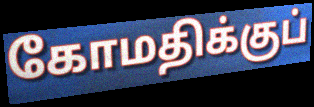
கோமதிக்குப்